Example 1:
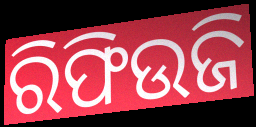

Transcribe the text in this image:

ରିଫିଉଜି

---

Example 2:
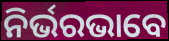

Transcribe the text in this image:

ନିର୍ଭରଭାବେ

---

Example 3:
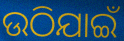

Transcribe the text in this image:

ଉଠିଯାଇଁ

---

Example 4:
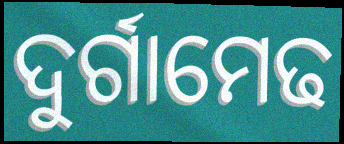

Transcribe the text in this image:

ଦୁର୍ଗାମେଢ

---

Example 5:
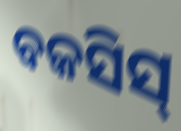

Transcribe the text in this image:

ବକସିସ୍